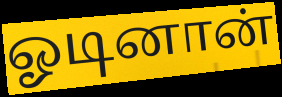
ஓடினான்